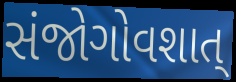
સંજોગોવશાત્